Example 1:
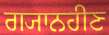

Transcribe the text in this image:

ਗ੍ਯਾਨਹੀਣ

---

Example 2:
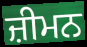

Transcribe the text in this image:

ਜ਼ੀਮਨ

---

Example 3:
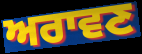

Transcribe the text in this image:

ਅਰਾਵਣ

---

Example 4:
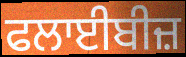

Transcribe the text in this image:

ਫਲਾਈਬੀਜ਼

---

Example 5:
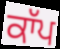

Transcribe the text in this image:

ਕਾੱਪ